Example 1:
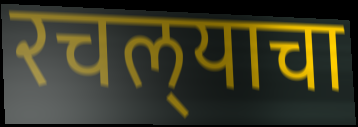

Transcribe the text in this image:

रचल्याचा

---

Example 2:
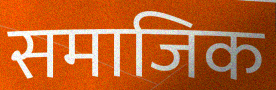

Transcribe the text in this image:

समाजिक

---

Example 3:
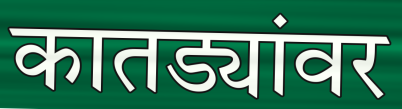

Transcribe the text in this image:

कातड्यांवर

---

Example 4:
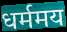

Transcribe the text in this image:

धर्ममय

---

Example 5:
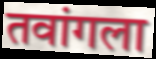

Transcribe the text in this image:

तवांगला